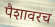
पैशावरच